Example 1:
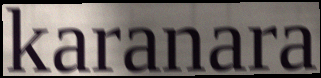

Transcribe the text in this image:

karanara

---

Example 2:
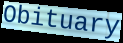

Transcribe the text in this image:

Obituary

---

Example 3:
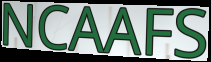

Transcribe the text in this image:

NCAAFS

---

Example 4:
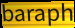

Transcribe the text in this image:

baraph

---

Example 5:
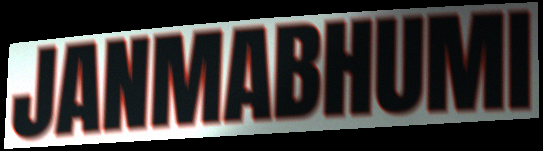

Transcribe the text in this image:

JANMABHUMI